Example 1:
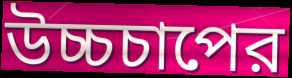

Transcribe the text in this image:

উচ্চচাপের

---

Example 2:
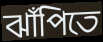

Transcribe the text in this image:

ঝাঁপিতে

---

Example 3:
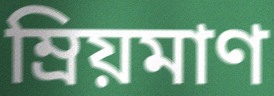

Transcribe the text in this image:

ম্রিয়মাণ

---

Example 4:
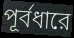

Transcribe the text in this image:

পূর্বধারে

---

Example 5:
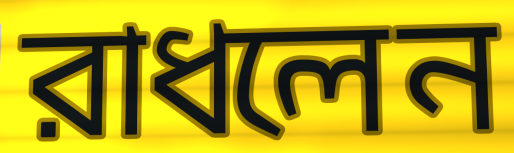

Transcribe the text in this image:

রাধলেন